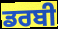
ਡਰਬੀ